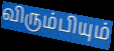
விரும்பியும்